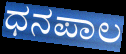
ಧನಪಾಲ